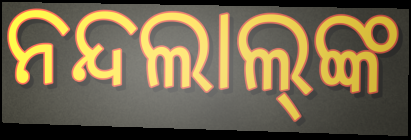
ନନ୍ଦଲାଲ୍‌ଙ୍କ